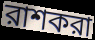
রাশকরা